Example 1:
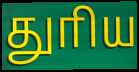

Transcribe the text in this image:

துரிய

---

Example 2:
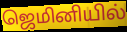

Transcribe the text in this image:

ஜெமினியில்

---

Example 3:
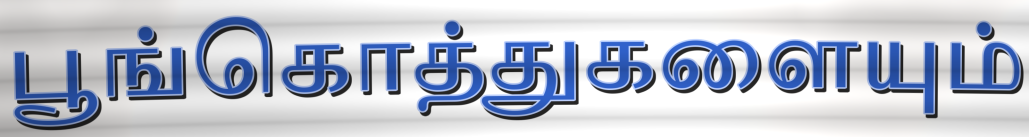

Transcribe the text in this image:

பூங்கொத்துகளையும்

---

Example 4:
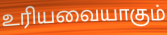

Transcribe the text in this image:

உரியவையாகும்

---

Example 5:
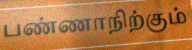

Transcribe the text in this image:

பண்ணாநிற்கும்